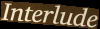
Interlude